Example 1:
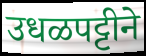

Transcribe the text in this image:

उधळपट्टीने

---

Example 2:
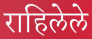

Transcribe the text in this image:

राहिलेले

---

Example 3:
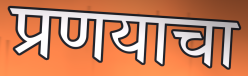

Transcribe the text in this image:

प्रणयाचा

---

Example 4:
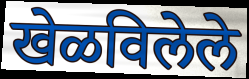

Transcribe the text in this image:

खेळविलेले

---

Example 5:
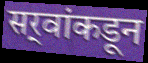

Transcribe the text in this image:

सर्वांकडून